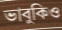
ভাবুকিও